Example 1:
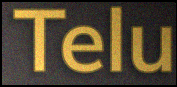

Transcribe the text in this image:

Telu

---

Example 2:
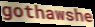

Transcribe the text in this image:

gothawshe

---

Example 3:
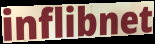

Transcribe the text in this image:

inflibnet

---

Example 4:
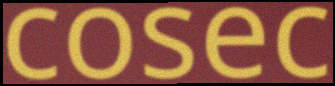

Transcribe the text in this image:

cosec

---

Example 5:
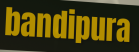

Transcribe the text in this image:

bandipura